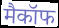
मैकॉफ